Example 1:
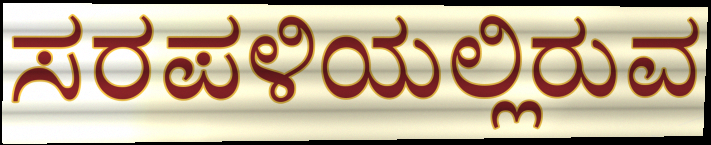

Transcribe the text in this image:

ಸರಪಳಿಯಲ್ಲಿರುವ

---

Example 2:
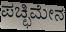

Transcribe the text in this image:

ಪಚ್ಛಿಮೇನ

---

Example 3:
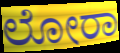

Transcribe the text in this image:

ಲೋರಾ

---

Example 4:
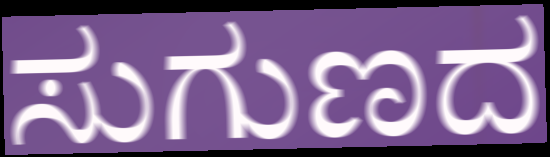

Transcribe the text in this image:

ಸುಗುಣದ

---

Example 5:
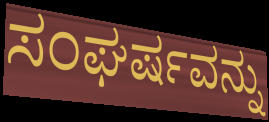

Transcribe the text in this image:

ಸಂಘರ್ಷವನ್ನು